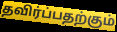
தவிர்ப்பதற்கும்